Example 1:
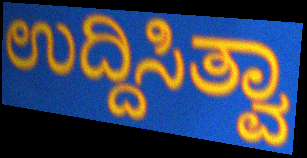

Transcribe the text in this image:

ಉದ್ದಿಸಿತ್ವಾ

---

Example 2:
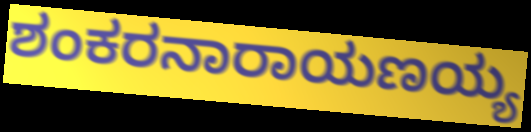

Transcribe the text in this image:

ಶಂಕರನಾರಾಯಣಯ್ಯ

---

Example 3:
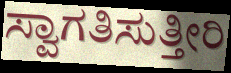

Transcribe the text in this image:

ಸ್ವಾಗತಿಸುತ್ತೀರಿ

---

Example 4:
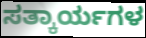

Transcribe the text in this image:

ಸತ್ಕಾರ್ಯಗಳ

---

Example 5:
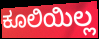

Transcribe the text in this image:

ಕೂಲಿಯಿಲ್ಲ